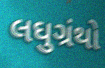
લઘુગ્રંથો